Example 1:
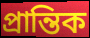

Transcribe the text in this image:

প্রান্তিক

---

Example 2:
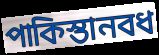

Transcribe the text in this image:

পাকিস্তানবধ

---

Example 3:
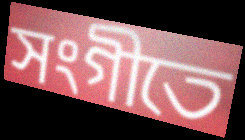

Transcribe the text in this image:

সংগীতে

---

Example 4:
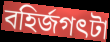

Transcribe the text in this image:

বহির্জগৎটা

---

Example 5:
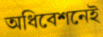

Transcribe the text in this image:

অধিবেশনেই